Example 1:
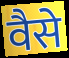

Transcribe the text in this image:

वैसे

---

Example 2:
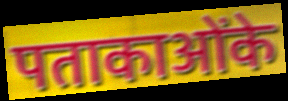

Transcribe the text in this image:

पताकाओंके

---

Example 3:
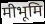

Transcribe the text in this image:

मीभूमि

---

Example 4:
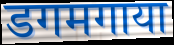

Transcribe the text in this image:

डगमगाया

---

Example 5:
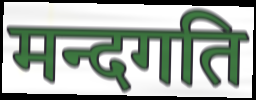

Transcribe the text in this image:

मन्दगति